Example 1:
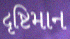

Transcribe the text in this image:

દૃષ્ટિમાન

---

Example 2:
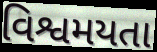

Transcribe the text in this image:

વિશ્વમયતા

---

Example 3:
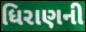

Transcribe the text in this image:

ધિરાણની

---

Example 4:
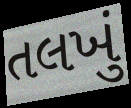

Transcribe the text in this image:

તલખું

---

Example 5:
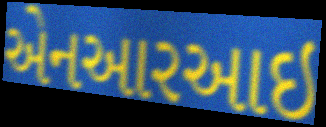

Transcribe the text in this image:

એનઆરઆઇ